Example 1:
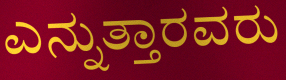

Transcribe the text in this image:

ಎನ್ನುತ್ತಾರವರು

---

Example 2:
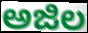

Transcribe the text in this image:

ಅಜಿಲ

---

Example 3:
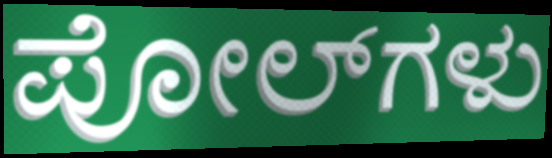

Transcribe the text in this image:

ಪೋಲ್‌ಗಳು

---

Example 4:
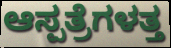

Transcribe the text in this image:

ಆಸ್ಪತ್ರೆಗಳತ್ತ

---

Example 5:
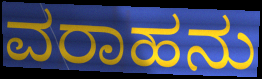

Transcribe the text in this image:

ವರಾಹನು